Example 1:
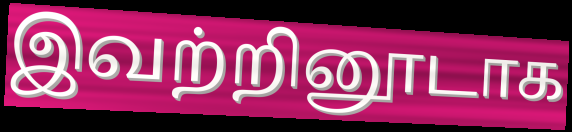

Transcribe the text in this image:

இவற்றினூடாக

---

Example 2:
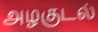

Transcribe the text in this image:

அழகுடல்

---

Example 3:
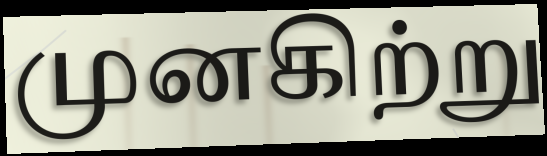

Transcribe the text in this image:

முனகிற்று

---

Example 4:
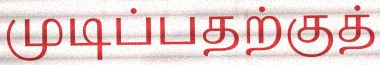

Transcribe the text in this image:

முடிப்பதற்குத்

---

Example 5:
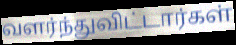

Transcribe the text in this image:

வளர்ந்துவிட்டார்கள்